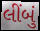
લીંબું